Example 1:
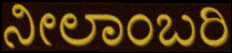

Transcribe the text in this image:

ನೀಲಾಂಬರಿ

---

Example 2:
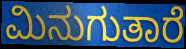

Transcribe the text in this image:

ಮಿನುಗುತಾರೆ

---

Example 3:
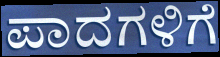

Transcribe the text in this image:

ಪಾದಗಳಿಗೆ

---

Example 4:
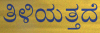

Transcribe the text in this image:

ತಿಳಿಯತ್ತದೆ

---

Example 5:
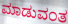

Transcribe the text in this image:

ಮಾಡುವಂತ